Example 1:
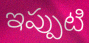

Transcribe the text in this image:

ఇప్పుటి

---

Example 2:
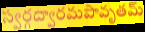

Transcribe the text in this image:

స్వర్గద్వారమపావృతమ్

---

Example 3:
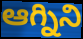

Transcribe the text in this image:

ఆగ్నిని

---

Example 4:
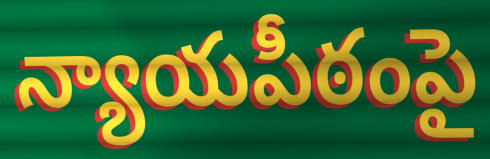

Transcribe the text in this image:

న్యాయపీఠంపై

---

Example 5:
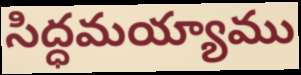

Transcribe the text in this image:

సిద్ధమయ్యాము